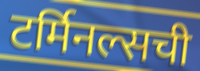
टर्मिनल्सची